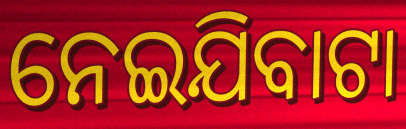
ନେଇଯିବାଟା